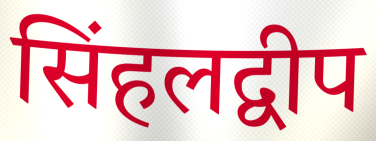
सिंहलद्वीप